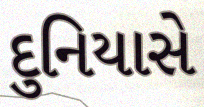
દુનિયાસે